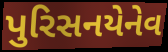
પુરિસનયેનેવ